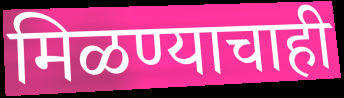
मिळण्याचाही